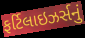
ફર્ટિલાઇઝર્સનું